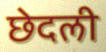
छेदली